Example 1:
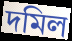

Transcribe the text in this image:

দমিল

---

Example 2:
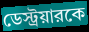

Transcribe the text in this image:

ডেস্ট্রয়ারকে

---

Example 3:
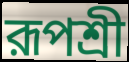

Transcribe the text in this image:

রূপশ্রী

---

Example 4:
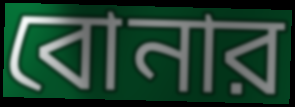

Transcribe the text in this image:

বোনার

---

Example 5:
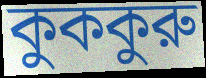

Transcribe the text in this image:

কুককুরু